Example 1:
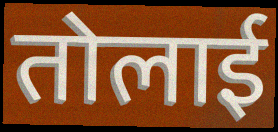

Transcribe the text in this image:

तोलाई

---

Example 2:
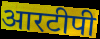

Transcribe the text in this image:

आरटीपी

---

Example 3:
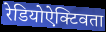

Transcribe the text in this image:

रेडियोऐक्टिवता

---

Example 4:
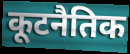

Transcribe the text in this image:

कूटनैतिक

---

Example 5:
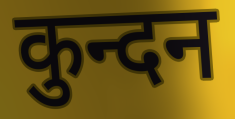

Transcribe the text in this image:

कुन्दन